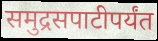
समुद्रसपाटीपर्यंत